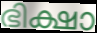
ഭിക്ഷാ